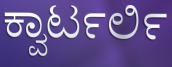
ಕ್ವಾರ್ಟರ್ಲಿ